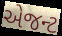
એજન્ટ